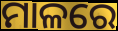
ମାଳରେ